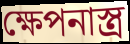
ক্ষেপনাস্ত্র